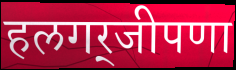
हलगर्जीपणा